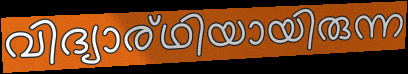
വിദ്യാര്ഥിയായിരുന്ന